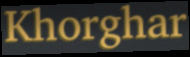
Khorghar